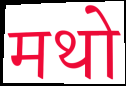
मथो